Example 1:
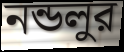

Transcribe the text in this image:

নন্ডলুর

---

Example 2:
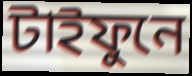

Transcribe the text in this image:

টাইফুনে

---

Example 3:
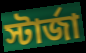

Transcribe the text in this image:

স্টার্জা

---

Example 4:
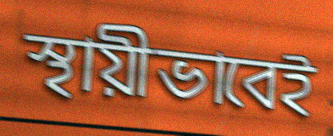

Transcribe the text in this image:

স্থায়ীভাবেই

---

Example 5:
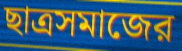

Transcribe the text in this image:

ছাত্রসমাজের